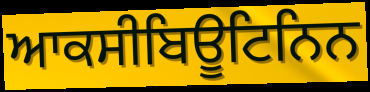
ਆਕਸੀਬਿਊਟਿਨਿਨ